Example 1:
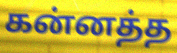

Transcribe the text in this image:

கன்னத்த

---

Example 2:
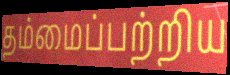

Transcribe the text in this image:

தம்மைப்பற்றிய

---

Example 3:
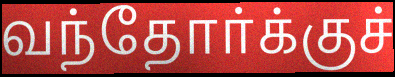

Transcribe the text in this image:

வந்தோர்க்குச்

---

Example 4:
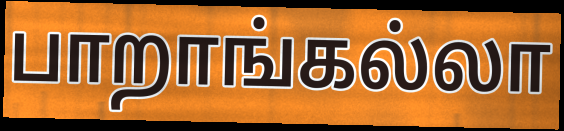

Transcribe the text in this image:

பாறாங்கல்லா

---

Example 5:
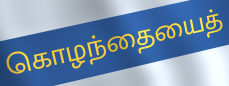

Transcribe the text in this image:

கொழந்தையைத்